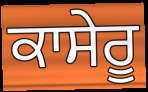
ਕਾਸੇਰੂ